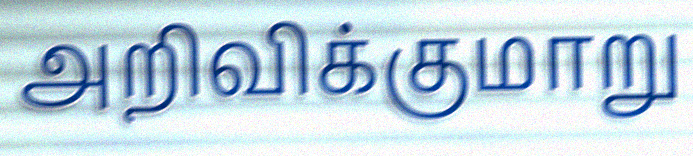
அறிவிக்குமாறு